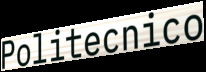
Politecnico